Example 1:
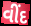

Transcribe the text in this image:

વીંદ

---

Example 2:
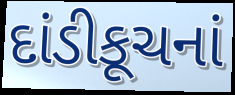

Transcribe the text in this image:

દાંડીકૂચનાં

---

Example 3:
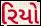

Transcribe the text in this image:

રિયો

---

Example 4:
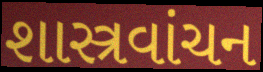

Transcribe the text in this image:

શાસ્ત્રવાંચન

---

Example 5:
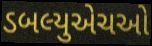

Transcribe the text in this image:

ડબલ્યુએચઓ